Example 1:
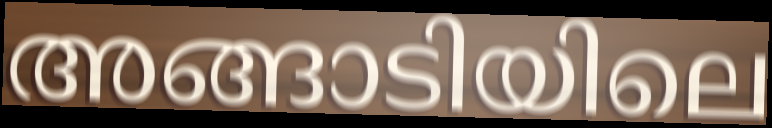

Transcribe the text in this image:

അങ്ങാടിയിലെ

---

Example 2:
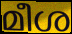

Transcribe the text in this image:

മീശ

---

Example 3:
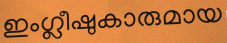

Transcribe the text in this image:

ഇംഗ്ലീഷുകാരുമായ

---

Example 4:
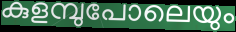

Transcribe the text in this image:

കുളമ്പുപോലെയും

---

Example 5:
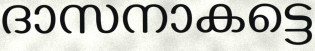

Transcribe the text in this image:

ദാസനാകട്ടെ